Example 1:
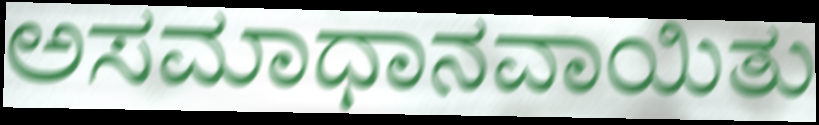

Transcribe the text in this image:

ಅಸಮಾಧಾನವಾಯಿತು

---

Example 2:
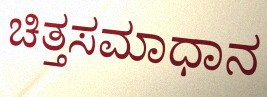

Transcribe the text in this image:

ಚಿತ್ತಸಮಾಧಾನ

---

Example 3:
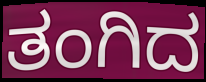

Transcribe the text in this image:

ತಂಗಿದ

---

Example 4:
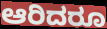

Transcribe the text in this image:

ಆರಿದರೂ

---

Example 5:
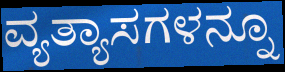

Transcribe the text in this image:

ವ್ಯತ್ಯಾಸಗಳನ್ನೂ